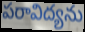
పరావిద్యను